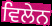
ਵਿਲੇਨ